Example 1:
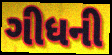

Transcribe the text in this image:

ગીધની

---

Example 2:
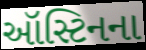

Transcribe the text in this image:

ઑસ્ટિનના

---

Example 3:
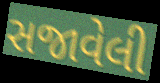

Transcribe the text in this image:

સજાવેલી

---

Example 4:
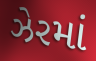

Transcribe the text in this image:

ઝેરમાં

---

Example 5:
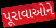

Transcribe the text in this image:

પૂરાવાઓને